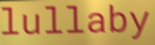
lullaby